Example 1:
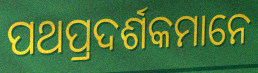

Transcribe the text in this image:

ପଥପ୍ରଦର୍ଶକମାନେ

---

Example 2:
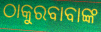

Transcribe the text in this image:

ଠାକୁରବାବାଙ୍କ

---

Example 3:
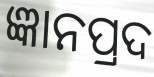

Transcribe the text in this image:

ଜ୍ଞାନପ୍ରଦ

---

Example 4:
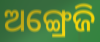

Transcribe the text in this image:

ଅଙ୍ଗ୍ରେଜି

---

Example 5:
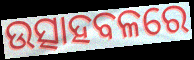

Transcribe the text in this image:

ଉତ୍ସାହବଳରେ